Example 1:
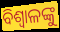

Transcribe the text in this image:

ବିଶ୍ୱାଳଙ୍କୁ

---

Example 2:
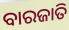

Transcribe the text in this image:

ବାରଜାତି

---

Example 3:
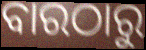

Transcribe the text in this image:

ବାରଠାରୁ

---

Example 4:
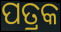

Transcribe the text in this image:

ପତ୍ରକ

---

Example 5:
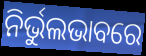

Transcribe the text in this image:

ନିର୍ଭୁଲଭାବରେ